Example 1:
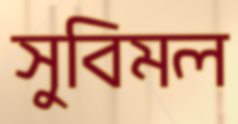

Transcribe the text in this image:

সুবিমল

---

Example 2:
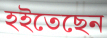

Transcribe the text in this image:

হইতেছেন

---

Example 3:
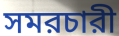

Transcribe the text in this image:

সমরচারী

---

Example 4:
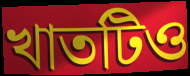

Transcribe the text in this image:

খাতটিও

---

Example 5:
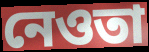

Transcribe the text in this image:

নেওতা